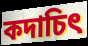
কদাচিৎ